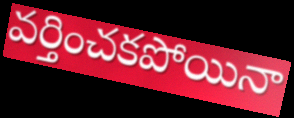
వర్తించకపోయినా